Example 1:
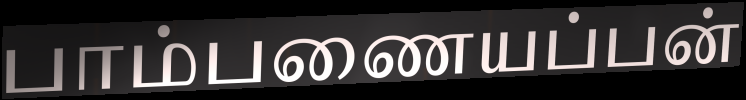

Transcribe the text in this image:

பாம்பணையப்பன்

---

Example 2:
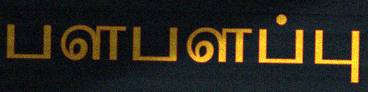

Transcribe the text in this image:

பளபளப்பு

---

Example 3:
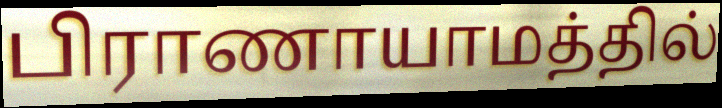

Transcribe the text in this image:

பிராணாயாமத்தில்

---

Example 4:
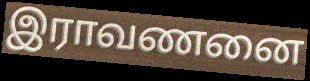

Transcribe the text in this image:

இராவணனை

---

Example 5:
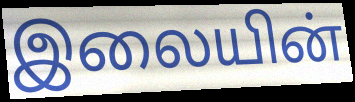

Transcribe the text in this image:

இலையின்